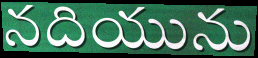
నదియును